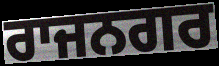
ਰਾਜਨਗਰ